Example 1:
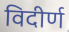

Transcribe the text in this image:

विदीर्ण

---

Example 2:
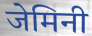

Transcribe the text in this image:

जेमिनी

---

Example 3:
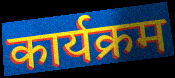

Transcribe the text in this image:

कार्यक्रम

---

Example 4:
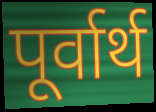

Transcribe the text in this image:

पूर्वार्थ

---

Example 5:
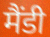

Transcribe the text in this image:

मैंडी